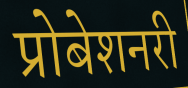
प्रोबेशनरी